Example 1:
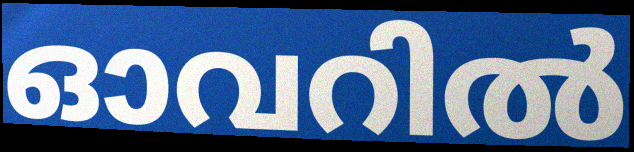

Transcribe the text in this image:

ഓവറിൽ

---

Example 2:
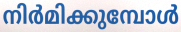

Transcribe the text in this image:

നിർമിക്കുമ്പോൾ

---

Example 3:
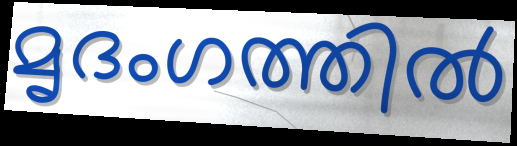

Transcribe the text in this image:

മൃദംഗത്തിൽ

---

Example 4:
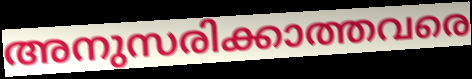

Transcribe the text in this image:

അനുസരിക്കാത്തവരെ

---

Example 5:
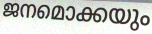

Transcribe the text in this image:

ജനമൊക്കയും